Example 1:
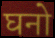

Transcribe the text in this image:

घनो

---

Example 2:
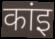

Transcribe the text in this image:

कांइ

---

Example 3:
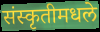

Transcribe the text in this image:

संस्कृतीमधले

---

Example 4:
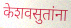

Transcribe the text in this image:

केशवसुतांना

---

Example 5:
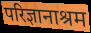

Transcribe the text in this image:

परिज्ञानाश्रम